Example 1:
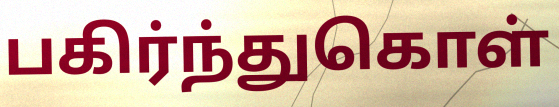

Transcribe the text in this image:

பகிர்ந்துகொள்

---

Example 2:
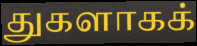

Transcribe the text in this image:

துகளாகக்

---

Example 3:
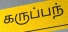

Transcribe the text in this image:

கருப்பந்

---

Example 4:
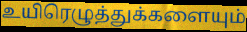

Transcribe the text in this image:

உயிரெழுத்துக்களையும்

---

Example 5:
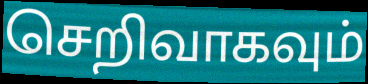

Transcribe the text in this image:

செறிவாகவும்